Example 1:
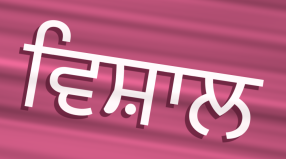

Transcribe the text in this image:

ਵਿਸ਼ਾਲ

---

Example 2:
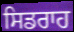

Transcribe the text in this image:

ਸਿਡਰਾਹ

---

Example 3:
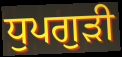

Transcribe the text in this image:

ਧੁਪਗੁੜੀ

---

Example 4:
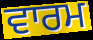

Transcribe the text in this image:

ਵਾਰਮ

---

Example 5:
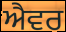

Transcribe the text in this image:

ਐਵਰ